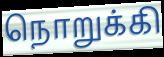
நொறுக்கி